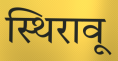
स्थिरावू